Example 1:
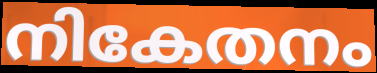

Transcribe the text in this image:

നികേതനം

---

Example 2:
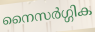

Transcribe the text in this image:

നൈസർഗ്ഗിക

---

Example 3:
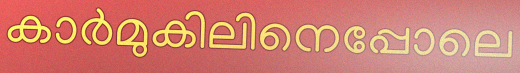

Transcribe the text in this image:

കാർമുകിലിനെപ്പോലെ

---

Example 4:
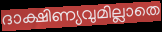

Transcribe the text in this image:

ദാക്ഷിണ്യവുമില്ലാതെ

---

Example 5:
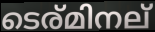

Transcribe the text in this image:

ടെര്മിനല്